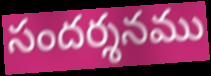
సందర్శనము